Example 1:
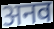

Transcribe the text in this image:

अनव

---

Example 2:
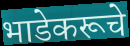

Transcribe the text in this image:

भाडेकरूचे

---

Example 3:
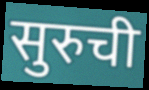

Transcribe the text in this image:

सुरुची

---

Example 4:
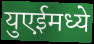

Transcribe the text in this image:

युएईमध्ये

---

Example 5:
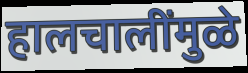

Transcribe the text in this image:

हालचालींमुळे